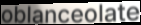
oblanceolate